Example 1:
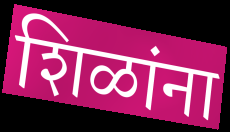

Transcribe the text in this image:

शिळांना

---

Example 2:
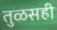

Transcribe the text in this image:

तुळसही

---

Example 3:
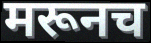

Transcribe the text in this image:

मरूनच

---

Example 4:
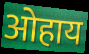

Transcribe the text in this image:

ओहाय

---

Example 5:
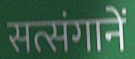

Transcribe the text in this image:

सत्संगानें